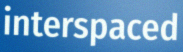
interspaced